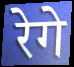
रेगे